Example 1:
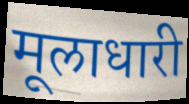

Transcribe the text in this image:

मूलाधारी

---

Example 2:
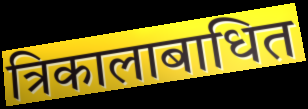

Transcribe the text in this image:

त्रिकालाबाधित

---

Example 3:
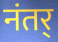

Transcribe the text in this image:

नंतर्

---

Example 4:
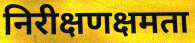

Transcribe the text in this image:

निरीक्षणक्षमता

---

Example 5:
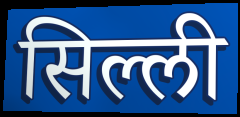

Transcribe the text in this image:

सिल्ली